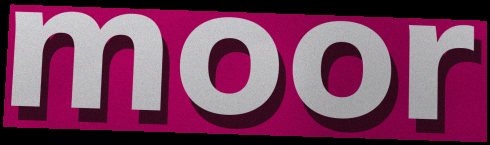
moor